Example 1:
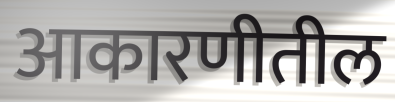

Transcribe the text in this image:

आकारणीतील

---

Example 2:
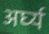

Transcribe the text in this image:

अर्घ्य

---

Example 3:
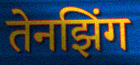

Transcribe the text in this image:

तेनझिंग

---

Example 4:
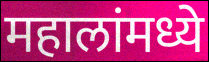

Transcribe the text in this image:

महालांमध्ये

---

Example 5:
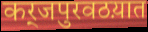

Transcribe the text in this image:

कर्जपुरवठय़ात